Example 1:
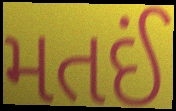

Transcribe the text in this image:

મતઈં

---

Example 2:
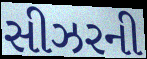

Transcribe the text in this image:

સીઝરની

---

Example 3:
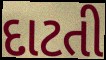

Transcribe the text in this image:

દાટતી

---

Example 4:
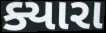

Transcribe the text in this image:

ક્યારા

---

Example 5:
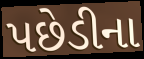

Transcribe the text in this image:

પછેડીના